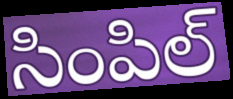
సింపిల్